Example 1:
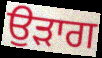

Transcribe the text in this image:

ਉੜਾਗ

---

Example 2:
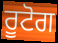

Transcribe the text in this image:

ਰੂਟੋਗ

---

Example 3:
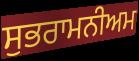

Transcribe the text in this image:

ਸੁਭਰਾਮਨੀਅਮ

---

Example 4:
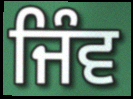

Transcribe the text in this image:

ਜਿੰਵ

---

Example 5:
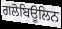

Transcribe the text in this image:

ਗਲੋਬਿਊਲਿਨ